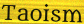
Taoism